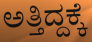
ಅತ್ತಿದ್ದಕ್ಕೆ